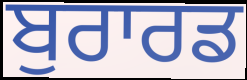
ਬੁਰਾਰਡ